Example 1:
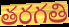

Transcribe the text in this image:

తరగతి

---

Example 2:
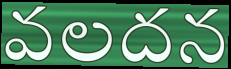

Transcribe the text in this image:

వలదన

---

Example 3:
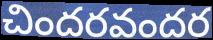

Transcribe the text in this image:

చిందరవందర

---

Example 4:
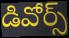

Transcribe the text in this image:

డివోర్స్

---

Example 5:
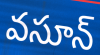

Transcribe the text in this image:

వసూన్